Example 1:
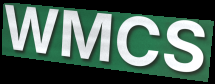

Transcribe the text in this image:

WMCS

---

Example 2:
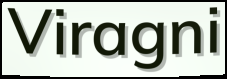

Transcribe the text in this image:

Viragni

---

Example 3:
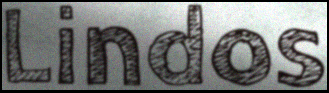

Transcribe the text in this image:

Lindos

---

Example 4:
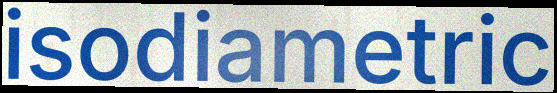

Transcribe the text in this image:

isodiametric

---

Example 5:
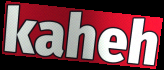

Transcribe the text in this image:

kaheh